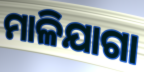
ମାଳିଯାଗା